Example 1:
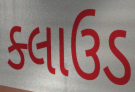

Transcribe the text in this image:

ક્લાઉડ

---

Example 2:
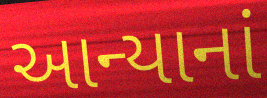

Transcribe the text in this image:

આન્યાનાં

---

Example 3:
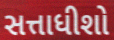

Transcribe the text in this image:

સત્તાધીશો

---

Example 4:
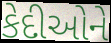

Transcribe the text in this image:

કેદીઓને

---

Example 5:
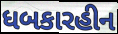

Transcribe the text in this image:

ધબકારહીન